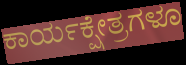
ಕಾರ್ಯಕ್ಷೇತ್ರಗಳೂ